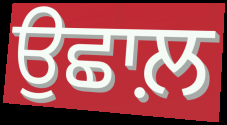
ਉਛਾਲ਼